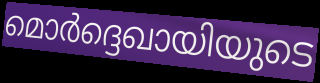
മൊർദ്ദെഖായിയുടെ